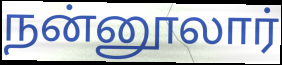
நன்னூலார்